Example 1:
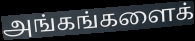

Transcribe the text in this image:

அங்கங்களைக்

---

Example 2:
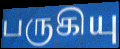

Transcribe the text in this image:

பருகியு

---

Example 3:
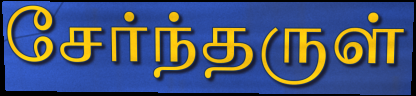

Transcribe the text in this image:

சேர்ந்தருள்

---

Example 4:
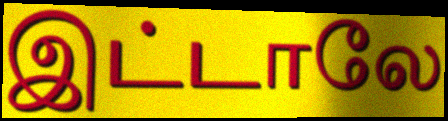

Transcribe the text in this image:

இட்டாலே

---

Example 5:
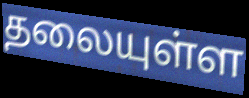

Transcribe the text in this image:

தலையுள்ள